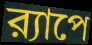
র‍্যাপে